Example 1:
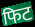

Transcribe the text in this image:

फिट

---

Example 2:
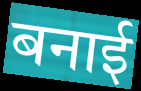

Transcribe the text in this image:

बनाई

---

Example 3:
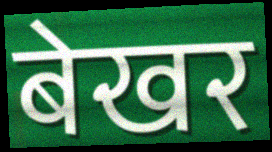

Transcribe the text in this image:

बेखर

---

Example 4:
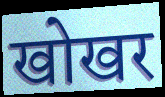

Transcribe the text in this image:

खोखर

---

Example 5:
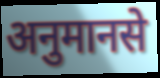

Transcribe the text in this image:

अनुमानसे